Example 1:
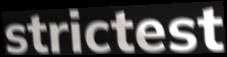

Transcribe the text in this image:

strictest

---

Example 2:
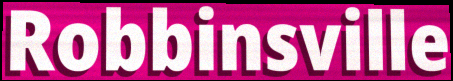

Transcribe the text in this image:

Robbinsville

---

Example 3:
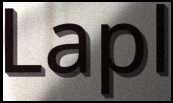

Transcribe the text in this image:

Lapl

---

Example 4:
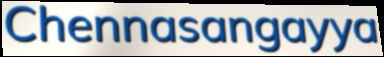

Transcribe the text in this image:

Chennasangayya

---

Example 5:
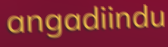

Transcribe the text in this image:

angadiindu